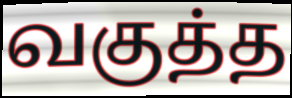
வகுத்த